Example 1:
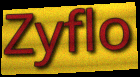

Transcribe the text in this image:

Zyflo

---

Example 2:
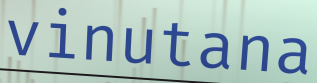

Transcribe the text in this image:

vinutana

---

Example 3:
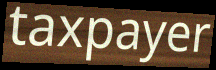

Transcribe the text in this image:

taxpayer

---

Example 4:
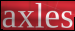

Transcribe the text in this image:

axles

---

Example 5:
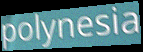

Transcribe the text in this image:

polynesia